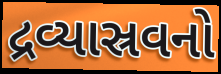
દ્રવ્યાસ્રવનો